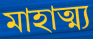
মাহাত্ম্য